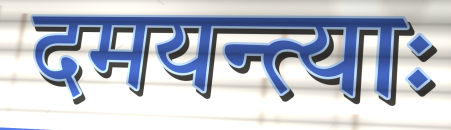
दमयन्त्याः